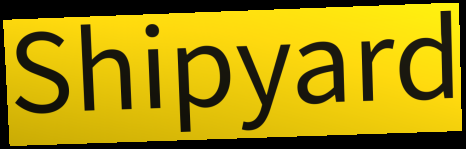
Shipyard